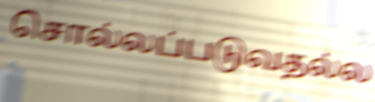
சொல்லப்படுவதல்ல